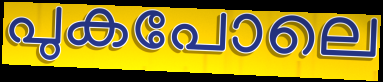
പുകപോലെ